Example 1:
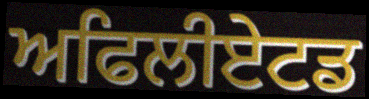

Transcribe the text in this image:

ਅਫਿਲੀਏਟਡ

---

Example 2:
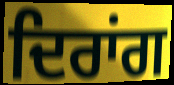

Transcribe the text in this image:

ਦਿਰਾਂਗ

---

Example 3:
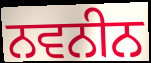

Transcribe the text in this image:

ਨਵਨੀਨ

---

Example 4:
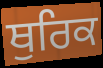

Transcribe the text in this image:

ਥੁਰਿਕ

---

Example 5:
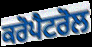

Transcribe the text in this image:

ਕਰੋਪੈਟਰੋਲ